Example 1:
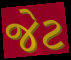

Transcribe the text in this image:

જેટ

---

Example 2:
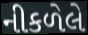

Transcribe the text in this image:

નીકળેલે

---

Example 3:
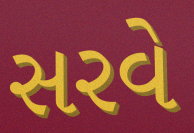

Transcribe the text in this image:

સરવે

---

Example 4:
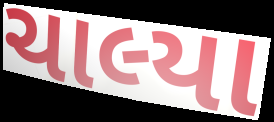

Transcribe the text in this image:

ચાલ્યા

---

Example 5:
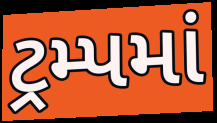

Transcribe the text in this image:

ટ્રમ્પમાં